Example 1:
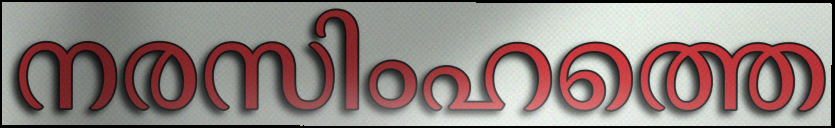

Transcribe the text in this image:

നരസിംഹത്തെ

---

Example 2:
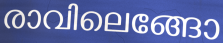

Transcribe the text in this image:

രാവിലെങ്ങോ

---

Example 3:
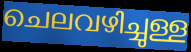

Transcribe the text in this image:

ചെലവഴിച്ചുള്ള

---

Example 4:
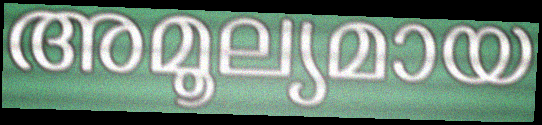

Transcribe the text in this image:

അമൂല്യമായ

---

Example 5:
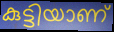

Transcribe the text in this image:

കുട്ടിയാണ്